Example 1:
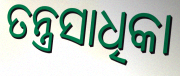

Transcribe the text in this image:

ତନ୍ତ୍ରସାଧିକା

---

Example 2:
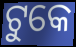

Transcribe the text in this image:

ଟୁକେ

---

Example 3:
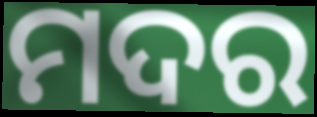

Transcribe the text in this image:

ମଦର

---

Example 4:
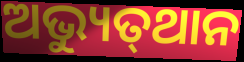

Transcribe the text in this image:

ଅଭ୍ୟୁତ୍‌ଥାନ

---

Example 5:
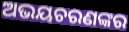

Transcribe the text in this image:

ଅଭୟଚରଣଙ୍କର